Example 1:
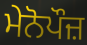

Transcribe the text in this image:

ਮੇਨੋਪੌਜ਼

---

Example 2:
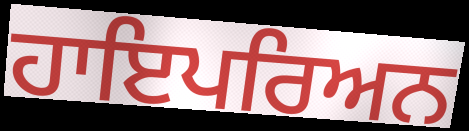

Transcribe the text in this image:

ਹਾਇਪਰਿਅਨ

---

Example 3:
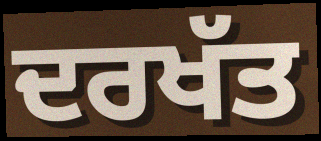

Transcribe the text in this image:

ਦਰਖੱਤ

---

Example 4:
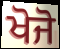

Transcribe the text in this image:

ਖੋਜੋ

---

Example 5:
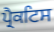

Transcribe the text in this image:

ਪ੍ਰੈਕਟਿਸ